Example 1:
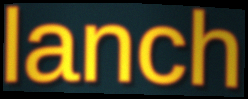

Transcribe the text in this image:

lanch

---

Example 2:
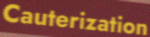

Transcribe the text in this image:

Cauterization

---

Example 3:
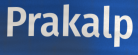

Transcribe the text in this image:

Prakalp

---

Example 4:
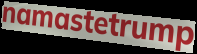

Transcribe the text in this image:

namastetrump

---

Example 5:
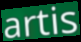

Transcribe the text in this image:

artis